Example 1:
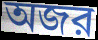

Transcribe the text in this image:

অজর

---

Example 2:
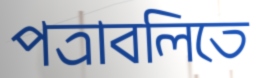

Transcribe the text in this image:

পত্রাবলিতে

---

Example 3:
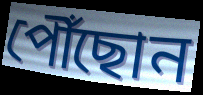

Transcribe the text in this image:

পৌঁছোন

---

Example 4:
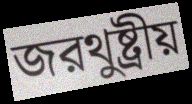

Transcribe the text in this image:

জরথুষ্ট্রীয়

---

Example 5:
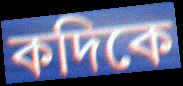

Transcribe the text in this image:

কদিকে